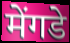
मेंगडे